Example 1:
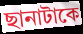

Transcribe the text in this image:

ছানাটাকে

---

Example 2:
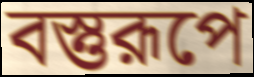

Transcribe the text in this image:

বস্তুরূপে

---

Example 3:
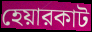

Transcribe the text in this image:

হেয়ারকাট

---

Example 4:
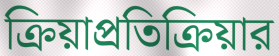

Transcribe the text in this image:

ক্রিয়াপ্রতিক্রিয়ার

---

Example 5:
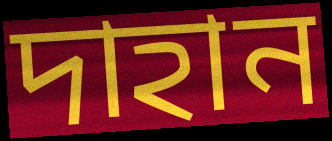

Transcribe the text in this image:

দাহান